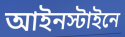
আইনস্টাইনে